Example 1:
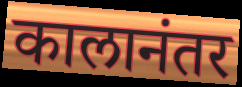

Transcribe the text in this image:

कालानंतर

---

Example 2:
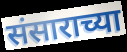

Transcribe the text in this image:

संसाराच्या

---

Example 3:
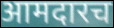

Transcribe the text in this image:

आमदारच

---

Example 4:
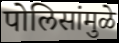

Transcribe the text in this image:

पोलिसांमुळे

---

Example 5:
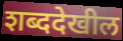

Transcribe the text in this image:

शब्ददेखील